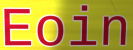
Eoin